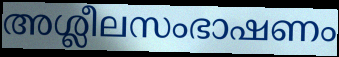
അശ്ലീലസംഭാഷണം